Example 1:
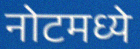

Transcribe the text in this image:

नोटमध्ये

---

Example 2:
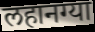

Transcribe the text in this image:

लहानग्या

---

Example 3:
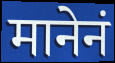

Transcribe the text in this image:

मानेनं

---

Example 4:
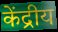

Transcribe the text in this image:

केंद्रीय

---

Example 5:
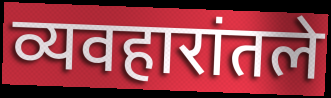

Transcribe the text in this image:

व्यवहारांतले